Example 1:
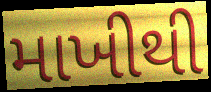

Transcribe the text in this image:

માખીથી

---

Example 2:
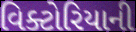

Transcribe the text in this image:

વિક્ટોરિયાની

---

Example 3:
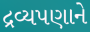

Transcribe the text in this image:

દ્રવ્યપણાને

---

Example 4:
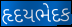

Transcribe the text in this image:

હૃદયભેદક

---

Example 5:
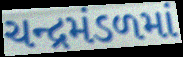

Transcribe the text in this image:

ચન્દ્રમંડળમાં